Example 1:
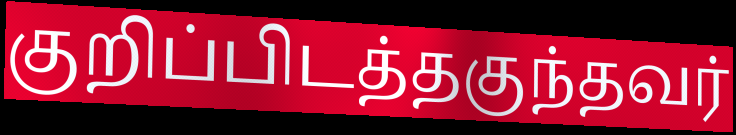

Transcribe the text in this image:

குறிப்பிடத்தகுந்தவர்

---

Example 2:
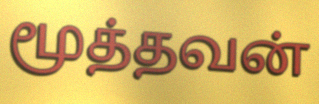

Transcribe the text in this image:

மூத்தவன்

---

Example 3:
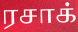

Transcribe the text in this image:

ரசாக்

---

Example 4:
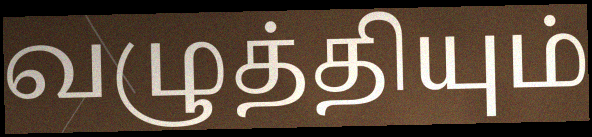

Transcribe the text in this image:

வழுத்தியும்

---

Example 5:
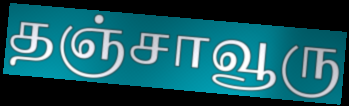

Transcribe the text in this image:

தஞ்சாவூரு